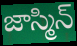
జాస్మిన్